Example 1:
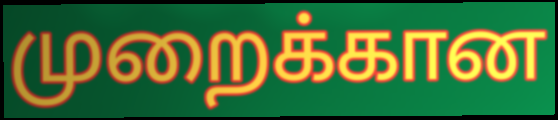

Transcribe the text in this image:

முறைக்கான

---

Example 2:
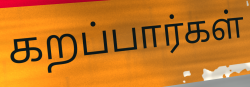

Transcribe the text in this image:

கறப்பார்கள்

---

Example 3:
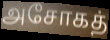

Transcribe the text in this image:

அசோகத்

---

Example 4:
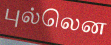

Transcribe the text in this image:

புல்லென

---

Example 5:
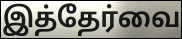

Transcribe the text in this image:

இத்தேர்வை